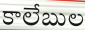
కాలేబుల